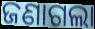
ଜଣାଗଲା